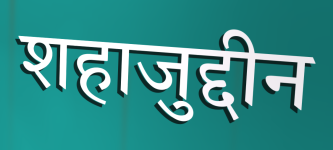
शहाजुद्दीन